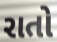
રાતો